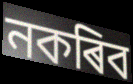
নকৰিব